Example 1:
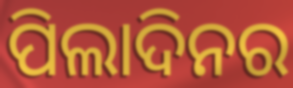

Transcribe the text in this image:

ପିଲାଦିନର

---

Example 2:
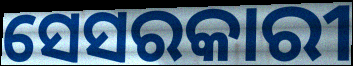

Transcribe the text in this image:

ସେସରକାରୀ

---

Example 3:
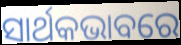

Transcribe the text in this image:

ସାର୍ଥକଭାବରେ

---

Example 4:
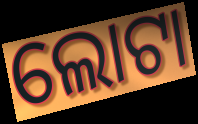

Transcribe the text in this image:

ଲୋଟା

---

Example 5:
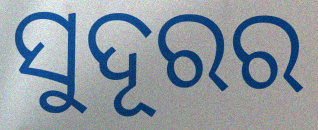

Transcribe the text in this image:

ସୁଦୂରର